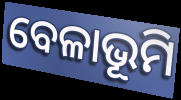
ବେଳାଭୂମି